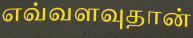
எவ்வளவுதான்